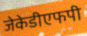
जेकेडीएफपी